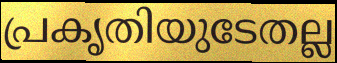
പ്രകൃതിയുടേതല്ല